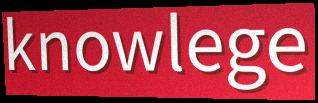
knowlege